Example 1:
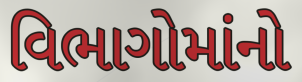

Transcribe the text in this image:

વિભાગોમાંનો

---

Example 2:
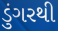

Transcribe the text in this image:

ડુંગરથી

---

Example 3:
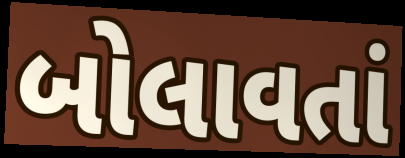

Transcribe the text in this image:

બોલાવતાં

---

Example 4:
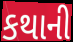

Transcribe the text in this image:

કથાની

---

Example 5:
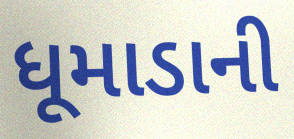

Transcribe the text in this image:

ધૂમાડાની